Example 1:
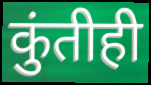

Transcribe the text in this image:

कुंतीही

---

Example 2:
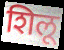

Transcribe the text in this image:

शिलू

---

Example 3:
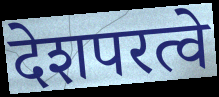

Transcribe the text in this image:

देशपरत्वे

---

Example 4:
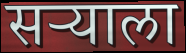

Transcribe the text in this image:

सऱ्याला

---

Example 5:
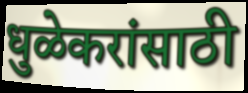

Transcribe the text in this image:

धुळेकरांसाठी